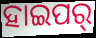
ହାଇପର୍